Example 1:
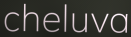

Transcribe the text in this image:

cheluva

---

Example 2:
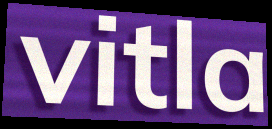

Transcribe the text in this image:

vitla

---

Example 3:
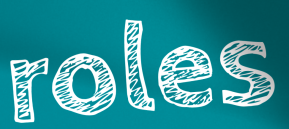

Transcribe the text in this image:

roles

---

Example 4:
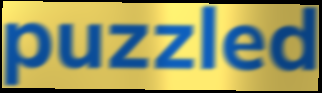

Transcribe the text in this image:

puzzled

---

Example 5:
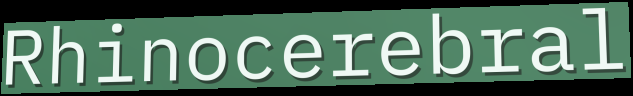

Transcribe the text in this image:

Rhinocerebral